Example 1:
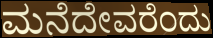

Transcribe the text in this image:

ಮನೆದೇವರೆಂದು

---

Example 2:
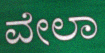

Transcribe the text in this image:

ವೇಲಾ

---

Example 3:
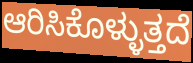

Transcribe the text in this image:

ಆರಿಸಿಕೊಳ್ಳುತ್ತದೆ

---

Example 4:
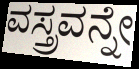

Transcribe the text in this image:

ವಸ್ತ್ರವನ್ನೇ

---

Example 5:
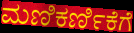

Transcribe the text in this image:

ಮಣಿಕರ್ಣಿಕೆಗೆ